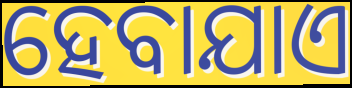
ହେବାଯାଏ